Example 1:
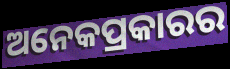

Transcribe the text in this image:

ଅନେକପ୍ରକାରର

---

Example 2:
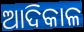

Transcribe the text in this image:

ଆଦିକାଳ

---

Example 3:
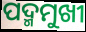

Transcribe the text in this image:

ପଦ୍ମମୁଖୀ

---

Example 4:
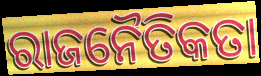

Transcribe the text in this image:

ରାଜନୈତିକତା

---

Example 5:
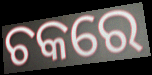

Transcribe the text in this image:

ଚକରେ